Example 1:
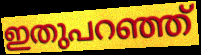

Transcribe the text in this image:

ഇതുപറഞ്ഞ്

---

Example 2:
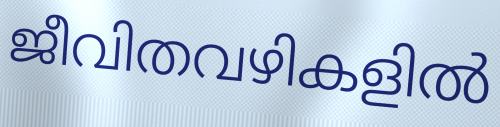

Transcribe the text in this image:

ജീവിതവഴികളിൽ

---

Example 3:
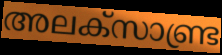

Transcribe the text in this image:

അലക്സാണ്ട്ര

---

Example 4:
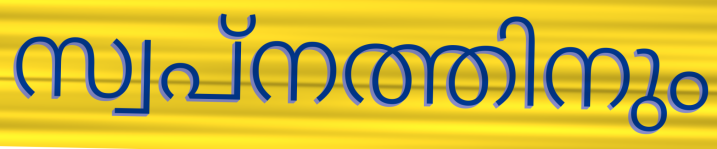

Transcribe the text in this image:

സ്വപ്നത്തിനും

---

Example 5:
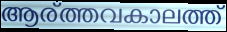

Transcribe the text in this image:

ആര്ത്തവകാലത്ത്